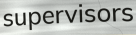
supervisors